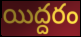
యిద్దరం